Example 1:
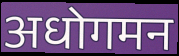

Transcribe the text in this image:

अधोगमन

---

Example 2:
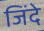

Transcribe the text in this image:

जिंदे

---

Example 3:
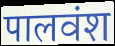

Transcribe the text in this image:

पालवंश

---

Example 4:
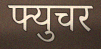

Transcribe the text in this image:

फ्युचर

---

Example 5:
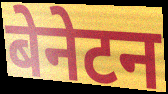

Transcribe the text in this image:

बेनेटन